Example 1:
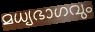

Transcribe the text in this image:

മധ്യഭാഗവും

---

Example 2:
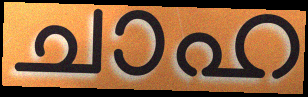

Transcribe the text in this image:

ചാഹ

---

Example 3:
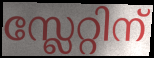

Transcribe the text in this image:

സ്ലേറ്റിന്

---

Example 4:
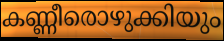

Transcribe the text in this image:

കണ്ണീരൊഴുക്കിയും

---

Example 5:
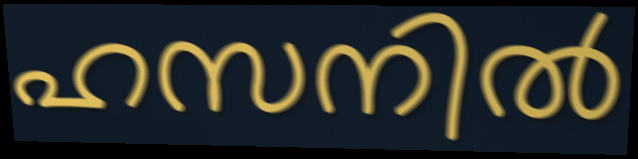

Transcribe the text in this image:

ഹസനിൽ